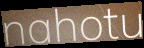
nahotu